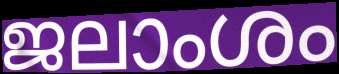
ജലാംശം